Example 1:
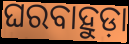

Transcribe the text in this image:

ଘରବାହୁଡ଼ା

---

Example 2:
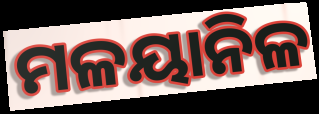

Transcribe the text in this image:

ମଳୟାନିଳ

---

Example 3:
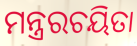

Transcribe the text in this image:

ମନ୍ତ୍ରରଚୟିତା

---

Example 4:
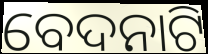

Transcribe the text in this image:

ବେଦନାଟି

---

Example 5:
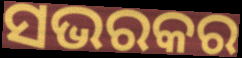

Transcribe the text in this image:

ସଭରକର